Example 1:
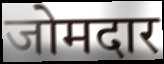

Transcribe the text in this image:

जोमदार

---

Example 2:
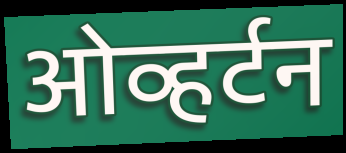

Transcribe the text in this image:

ओव्हर्टन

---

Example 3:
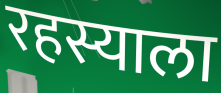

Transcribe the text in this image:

रहस्याला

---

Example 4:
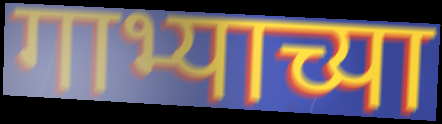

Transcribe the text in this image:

गाभ्याच्या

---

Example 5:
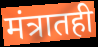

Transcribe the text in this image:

मंत्रातही